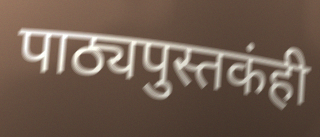
पाठ्यपुस्तकंही